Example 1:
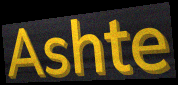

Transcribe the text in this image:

Ashte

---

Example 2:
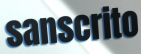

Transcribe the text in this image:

sanscrito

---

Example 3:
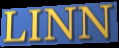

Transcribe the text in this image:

LINN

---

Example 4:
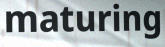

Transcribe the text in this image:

maturing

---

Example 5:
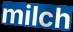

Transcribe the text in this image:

milch